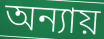
অন্যায়